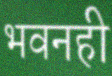
भवनही